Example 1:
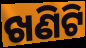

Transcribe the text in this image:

ଖଣିଟି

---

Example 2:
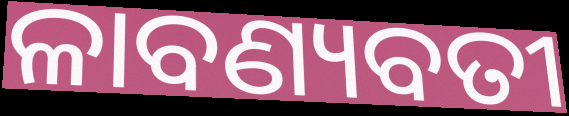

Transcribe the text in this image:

ଳାବଣ୍ୟବତୀ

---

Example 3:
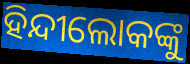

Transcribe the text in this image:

ହିନ୍ଦୀଲୋକଙ୍କୁ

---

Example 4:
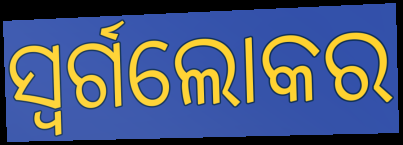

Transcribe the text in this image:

ସ୍ୱର୍ଗଲୋକର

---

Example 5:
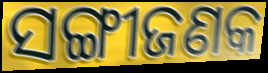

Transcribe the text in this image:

ସଙ୍ଗୀଜଣକ